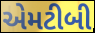
એમટીબી